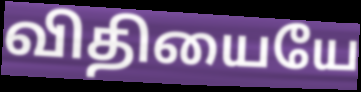
விதியையே